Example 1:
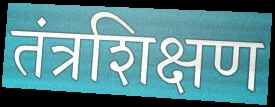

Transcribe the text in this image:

तंत्रशिक्षण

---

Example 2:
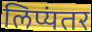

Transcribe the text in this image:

लिप्यंतर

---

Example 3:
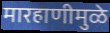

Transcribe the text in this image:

मारहाणीमुळे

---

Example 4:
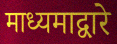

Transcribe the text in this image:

माध्यमाद्वारे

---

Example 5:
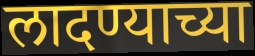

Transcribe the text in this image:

लादण्याच्या